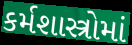
કર્મશાસ્ત્રોમાં